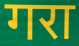
गरा